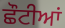
ਛੌਟੀਆਂ